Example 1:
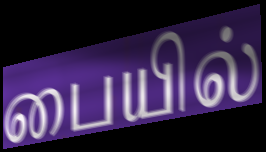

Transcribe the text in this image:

பையில்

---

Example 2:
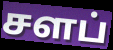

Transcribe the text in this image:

சளப்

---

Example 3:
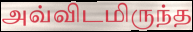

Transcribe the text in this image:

அவ்விடமிருந்த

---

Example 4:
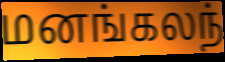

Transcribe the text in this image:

மனங்கலந்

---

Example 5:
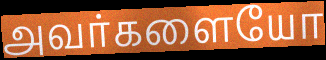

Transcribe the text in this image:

அவர்களையோ